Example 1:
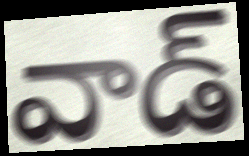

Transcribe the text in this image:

వాడ్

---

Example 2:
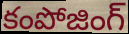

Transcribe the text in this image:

కంపోజింగ్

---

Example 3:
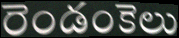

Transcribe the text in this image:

రెండంకెలు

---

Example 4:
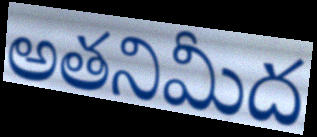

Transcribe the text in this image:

అతనిమీద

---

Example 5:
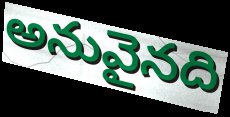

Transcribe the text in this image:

అనువైనది